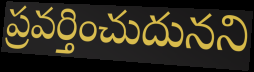
ప్రవర్తించుదునని